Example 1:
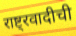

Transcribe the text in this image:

राष्ट्रवादीची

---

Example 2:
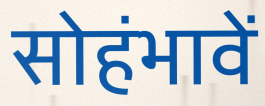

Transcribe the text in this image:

सोहंभावें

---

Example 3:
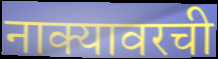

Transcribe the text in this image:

नाक्यावरची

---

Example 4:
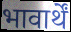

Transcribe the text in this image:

भावार्थें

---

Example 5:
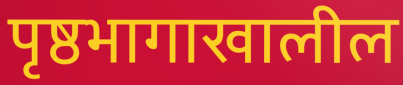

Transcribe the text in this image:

पृष्ठभागाखालील